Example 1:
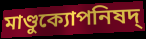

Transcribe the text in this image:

মাণ্ডুক্যোপনিষদ্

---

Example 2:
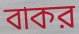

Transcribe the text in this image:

বাকর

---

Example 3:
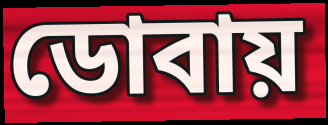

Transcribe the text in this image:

ডোবায়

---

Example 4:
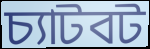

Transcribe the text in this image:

চ্যাটবট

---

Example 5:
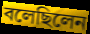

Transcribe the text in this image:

বলেছিলেন